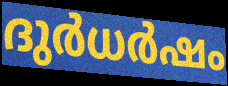
ദുർധർഷം